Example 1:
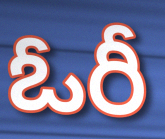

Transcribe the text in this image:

ఓరీ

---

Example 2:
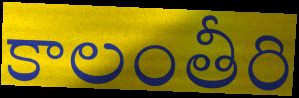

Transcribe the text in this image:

కాలంతీరి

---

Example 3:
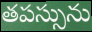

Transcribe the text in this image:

తపస్సును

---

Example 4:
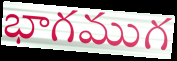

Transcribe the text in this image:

భాగముగ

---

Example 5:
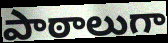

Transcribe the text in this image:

పాఠాలుగా